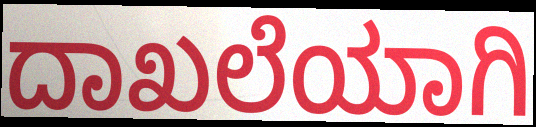
ದಾಖಲೆಯಾಗಿ